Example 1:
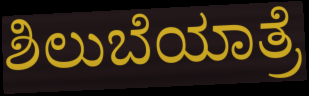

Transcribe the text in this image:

ಶಿಲುಬೆಯಾತ್ರೆ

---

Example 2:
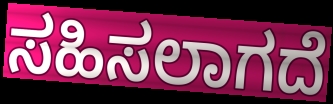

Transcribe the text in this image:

ಸಹಿಸಲಾಗದೆ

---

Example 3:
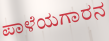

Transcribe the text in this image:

ಪಾಳೆಯಗಾರನ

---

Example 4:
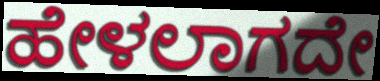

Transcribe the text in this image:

ಹೇಳಲಾಗದೇ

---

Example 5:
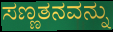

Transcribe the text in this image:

ಸಣ್ಣತನವನ್ನು